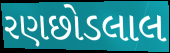
રણછોડલાલ